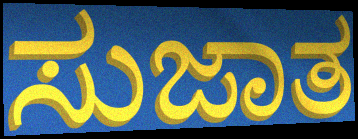
ಸುಜಾತ